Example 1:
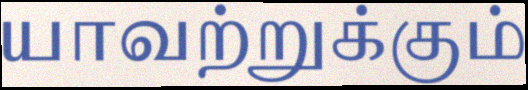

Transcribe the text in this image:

யாவற்றுக்கும்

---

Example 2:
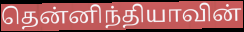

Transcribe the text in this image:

தென்னிந்தியாவின்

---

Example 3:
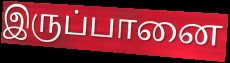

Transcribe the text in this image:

இருப்பானை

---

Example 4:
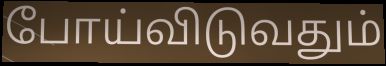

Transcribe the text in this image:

போய்விடுவதும்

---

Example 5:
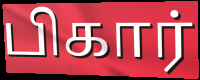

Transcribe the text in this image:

பிகார்